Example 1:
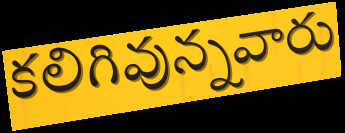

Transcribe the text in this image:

కలిగివున్నవారు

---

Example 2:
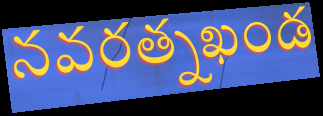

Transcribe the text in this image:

నవరత్నఖండ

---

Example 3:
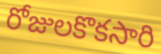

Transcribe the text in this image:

రోజులకొకసారి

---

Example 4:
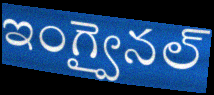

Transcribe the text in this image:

ఇంగ్వైనల్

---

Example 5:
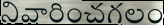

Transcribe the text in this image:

నివారించగలం